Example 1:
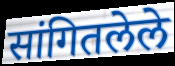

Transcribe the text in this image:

सांगितलेले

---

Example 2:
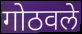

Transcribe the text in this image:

गोठवले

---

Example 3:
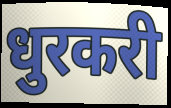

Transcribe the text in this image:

धुरकरी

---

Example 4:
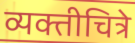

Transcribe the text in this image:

व्यक्तीचित्रे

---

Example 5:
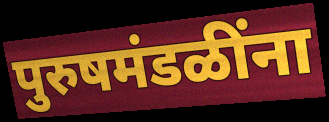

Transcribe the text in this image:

पुरुषमंडळींना